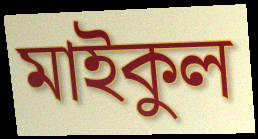
মাইকুল